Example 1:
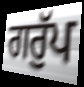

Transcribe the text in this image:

ਗਰੁੱਪ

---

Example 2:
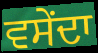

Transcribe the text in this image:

ਵਸੇਂਦਾ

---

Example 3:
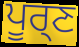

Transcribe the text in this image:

ਪੂਰ੍ਣ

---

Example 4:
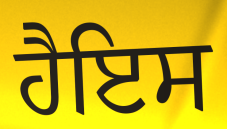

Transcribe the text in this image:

ਹੈਇਸ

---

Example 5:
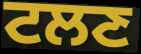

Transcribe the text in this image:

ਟਲਣ